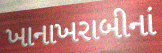
ખાનાખરાબીનાં